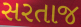
સરતાજ